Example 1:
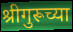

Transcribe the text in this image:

श्रीगुरूच्या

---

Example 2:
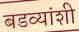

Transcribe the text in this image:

बडव्यांशी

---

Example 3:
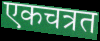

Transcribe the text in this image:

एकचत्रत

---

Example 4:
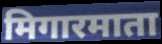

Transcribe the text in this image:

मिगारमाता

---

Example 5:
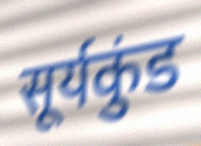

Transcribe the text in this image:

सूर्यकुंड